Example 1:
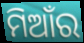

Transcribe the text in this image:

ମିଆଁର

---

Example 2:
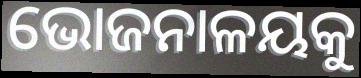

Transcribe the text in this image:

ଭୋଜନାଳୟକୁ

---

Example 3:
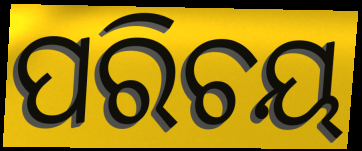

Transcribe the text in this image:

ପରିଚୟ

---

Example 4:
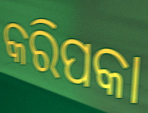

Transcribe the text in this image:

କରିପକା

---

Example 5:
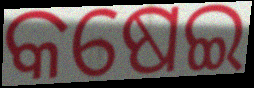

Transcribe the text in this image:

କଷେଇ